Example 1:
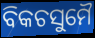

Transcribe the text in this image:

ବିକଚସୁମୈ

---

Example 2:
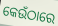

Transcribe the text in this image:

କେଉଁଠାରେ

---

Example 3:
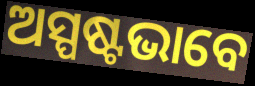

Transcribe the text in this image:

ଅସ୍ପଷ୍ଟଭାବେ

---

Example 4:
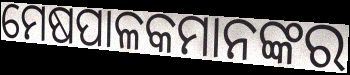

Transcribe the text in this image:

ମେଷପାଳକମାନଙ୍କର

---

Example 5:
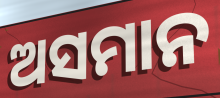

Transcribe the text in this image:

ଅସମାନ